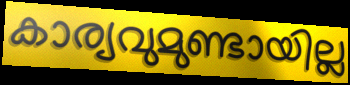
കാര്യവുമുണ്ടായില്ല